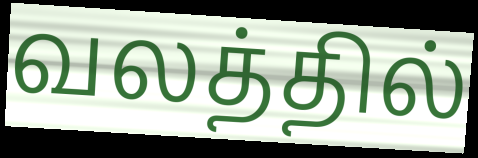
வலத்தில்